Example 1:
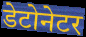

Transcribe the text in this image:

डेटोनेटर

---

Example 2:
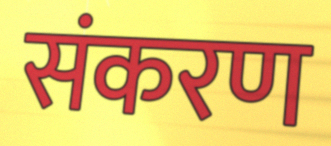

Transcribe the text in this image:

संकरण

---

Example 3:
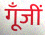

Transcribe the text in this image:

गूँजीं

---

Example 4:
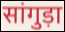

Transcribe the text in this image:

सांगुड़ा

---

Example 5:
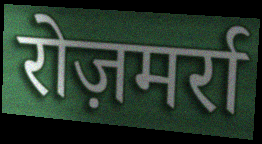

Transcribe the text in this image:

रोज़मर्रा